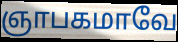
ஞாபகமாவே